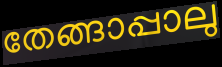
തേങ്ങാപ്പാലു